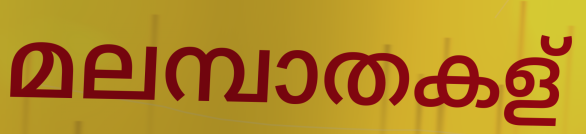
മലമ്പാതകള്